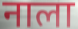
नाला